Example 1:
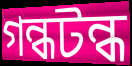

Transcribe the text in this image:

গন্ধটন্ধ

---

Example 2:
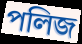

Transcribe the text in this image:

পলিজ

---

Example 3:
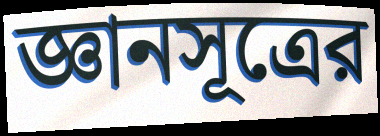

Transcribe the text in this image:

জ্ঞানসূত্রের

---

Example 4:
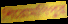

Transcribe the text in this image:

শিরোমণিপুর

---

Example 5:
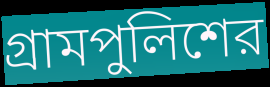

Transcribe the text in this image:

গ্রামপুলিশের